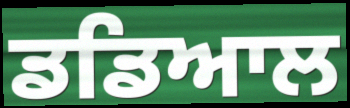
ਡਡਿਆਲ